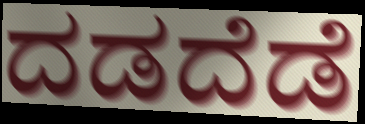
ದಡದೆಡೆ